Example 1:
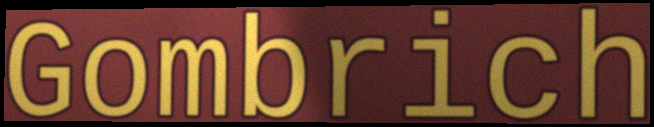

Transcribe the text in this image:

Gombrich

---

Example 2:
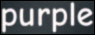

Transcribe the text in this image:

purple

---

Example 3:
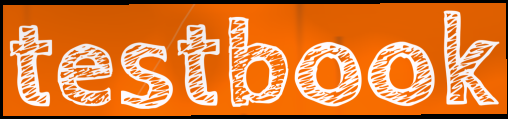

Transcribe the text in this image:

testbook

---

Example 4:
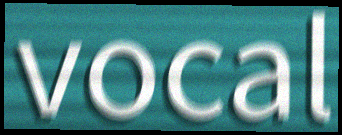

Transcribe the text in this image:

vocal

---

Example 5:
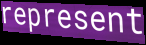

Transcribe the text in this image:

represent